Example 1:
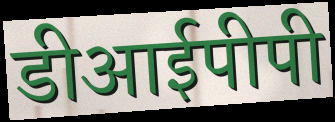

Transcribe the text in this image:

डीआईपीपी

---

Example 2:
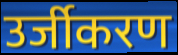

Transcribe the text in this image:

उर्जीकरण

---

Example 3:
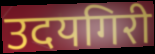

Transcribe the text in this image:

उदयगिरी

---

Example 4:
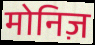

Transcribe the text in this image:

मोनिज़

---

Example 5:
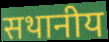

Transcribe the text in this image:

सथानीय